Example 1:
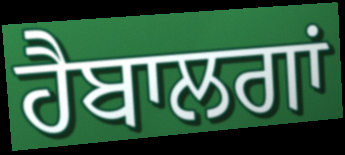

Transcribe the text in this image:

ਹੈਬਾਲਗਾਂ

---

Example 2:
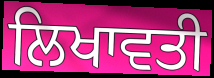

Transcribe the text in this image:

ਲਿਖਾਵਤੀ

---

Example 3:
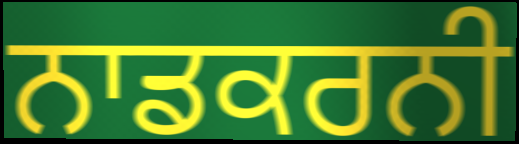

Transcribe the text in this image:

ਨਾਡਕਰਨੀ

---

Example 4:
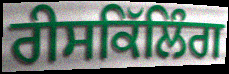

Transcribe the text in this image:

ਰੀਸਕਿੱਲਿੰਗ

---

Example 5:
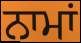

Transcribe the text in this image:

ਨਾਮਾਂ